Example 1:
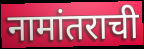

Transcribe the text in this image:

नामांतराची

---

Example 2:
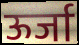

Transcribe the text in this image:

ऊर्जा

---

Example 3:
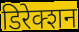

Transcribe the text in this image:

डिरेक्शन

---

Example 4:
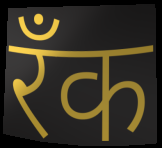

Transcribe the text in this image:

रँक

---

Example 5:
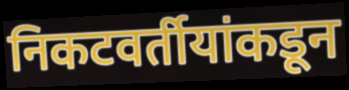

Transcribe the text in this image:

निकटवर्तीयांकडून